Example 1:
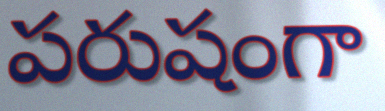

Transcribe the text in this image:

పరుషంగా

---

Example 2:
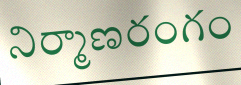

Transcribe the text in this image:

నిర్మాణరంగం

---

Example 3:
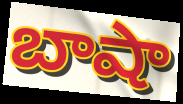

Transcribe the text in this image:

బాషా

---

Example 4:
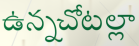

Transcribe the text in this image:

ఉన్నచోటల్లా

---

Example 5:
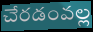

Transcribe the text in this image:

చేరడంవల్ల